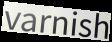
varnish